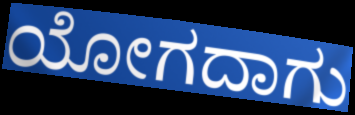
ಯೋಗದಾಗು